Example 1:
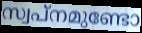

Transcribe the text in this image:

സ്വപ്നമുണ്ടോ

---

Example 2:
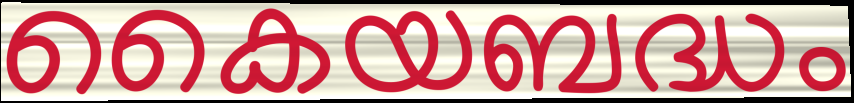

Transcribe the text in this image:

കൈയബദ്ധം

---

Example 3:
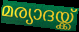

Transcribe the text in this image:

മര്യാദയ്ക്ക്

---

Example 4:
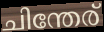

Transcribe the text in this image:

ചിന്തേര്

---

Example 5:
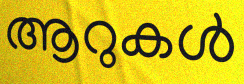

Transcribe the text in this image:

ആറുകൾ